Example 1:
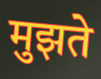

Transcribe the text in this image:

मुझते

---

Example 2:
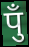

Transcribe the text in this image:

पुँ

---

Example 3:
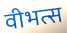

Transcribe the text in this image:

वीभत्स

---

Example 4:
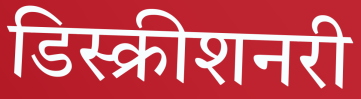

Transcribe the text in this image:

डिस्क्रीशनरी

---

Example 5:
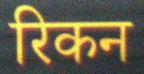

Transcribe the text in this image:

रिकन